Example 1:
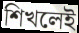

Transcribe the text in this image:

শিখলেই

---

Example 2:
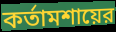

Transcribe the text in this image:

কর্তামশায়ের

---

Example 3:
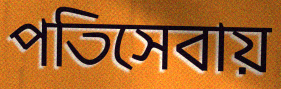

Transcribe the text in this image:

পতিসেবায়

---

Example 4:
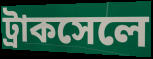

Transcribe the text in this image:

ট্রাকসেলে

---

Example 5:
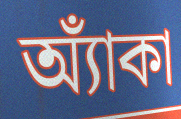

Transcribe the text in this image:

অ্যাঁকা